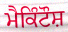
ਮੈਕਿੰਟੌਸ਼